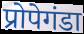
प्रोपेगंडा